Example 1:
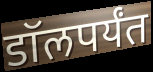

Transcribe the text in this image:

डॉलपर्यंत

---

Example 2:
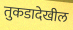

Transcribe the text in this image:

तुकडादेखील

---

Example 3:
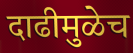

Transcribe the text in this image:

दाढीमुळेच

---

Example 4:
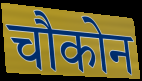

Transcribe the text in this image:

चौकोन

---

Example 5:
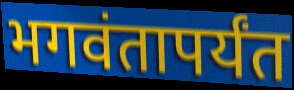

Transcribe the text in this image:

भगवंतापर्यंत